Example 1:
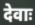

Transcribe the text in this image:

देवाः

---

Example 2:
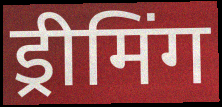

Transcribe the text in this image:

ड्रीमिंग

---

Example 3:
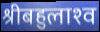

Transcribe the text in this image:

श्रीबहुलाश्व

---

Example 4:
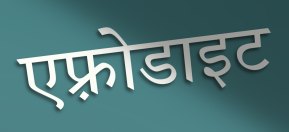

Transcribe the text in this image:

एफ़्रोडाइट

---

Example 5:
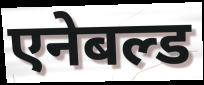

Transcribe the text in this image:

एनेबल्ड